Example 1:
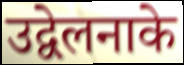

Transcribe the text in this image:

उद्वेलनाके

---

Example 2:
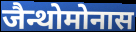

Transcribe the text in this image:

जैन्थोमोनास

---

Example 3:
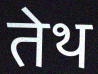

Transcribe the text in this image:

तेथ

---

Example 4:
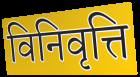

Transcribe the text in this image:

विनिवृत्ति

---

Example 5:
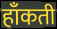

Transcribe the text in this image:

हाँकती